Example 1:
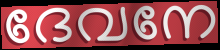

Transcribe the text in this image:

ദേവനേ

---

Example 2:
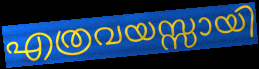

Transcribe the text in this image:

എത്രവയസ്സായി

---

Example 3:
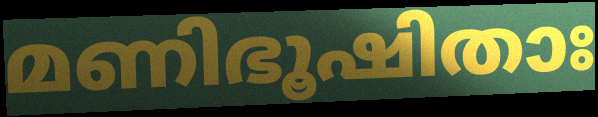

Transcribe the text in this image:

മണിഭൂഷിതാഃ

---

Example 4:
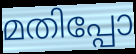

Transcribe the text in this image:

മതിപ്പോ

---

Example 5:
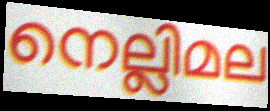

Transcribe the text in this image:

നെല്ലിമല